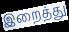
இறைத்து